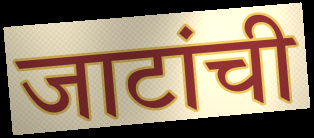
जाटांची